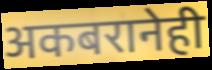
अकबरानेही